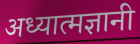
अध्यात्मज्ञानी